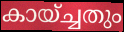
കായ്ച്ചതും